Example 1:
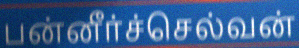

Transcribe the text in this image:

பன்னீர்ச்செல்வன்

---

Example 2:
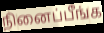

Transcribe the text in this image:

நினைப்பீங்க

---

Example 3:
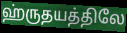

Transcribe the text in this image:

ஹ்ருதயத்திலே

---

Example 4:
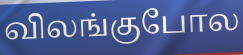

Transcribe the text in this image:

விலங்குபோல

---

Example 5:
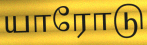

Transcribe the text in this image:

யாரோடு